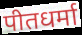
पीतधर्मा